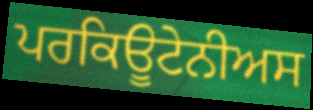
ਪਰਕਿਊਟੇਨੀਅਸ